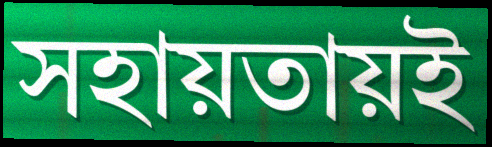
সহায়তায়ই